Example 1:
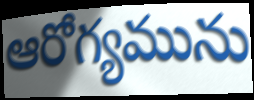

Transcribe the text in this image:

ఆరోగ్యమును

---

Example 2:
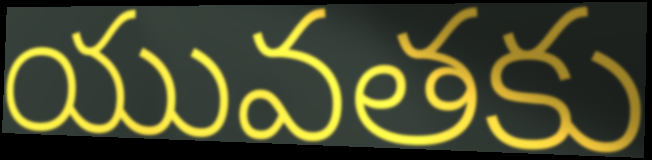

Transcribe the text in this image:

యువతకు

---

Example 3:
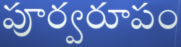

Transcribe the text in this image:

పూర్వరూపం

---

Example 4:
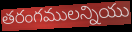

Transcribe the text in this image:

తరంగములన్నియు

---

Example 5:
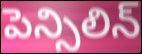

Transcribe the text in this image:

పెన్సిలిన్